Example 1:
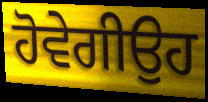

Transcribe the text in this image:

ਹੋਵੇਗੀਉਹ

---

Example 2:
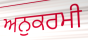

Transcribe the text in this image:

ਅਨੁਕਰਮੀ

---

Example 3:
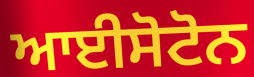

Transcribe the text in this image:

ਆਈਸੋਟੋਨ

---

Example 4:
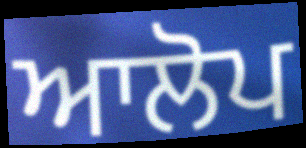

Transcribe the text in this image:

ਆਲੋਪ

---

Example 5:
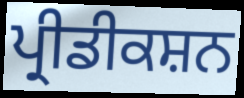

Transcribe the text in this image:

ਪ੍ਰੀਡੀਕਸ਼ਨ